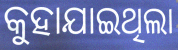
କୁହାଯାଇଥିଲା